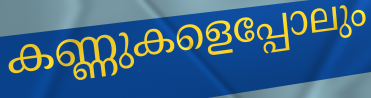
കണ്ണുകളെപ്പോലും